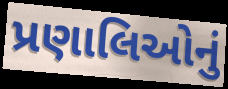
પ્રણાલિઓનું